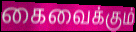
கைவைக்கும்